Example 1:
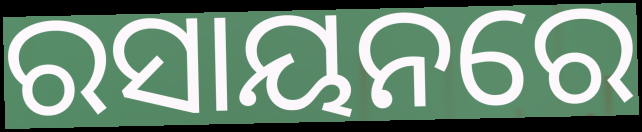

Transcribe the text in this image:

ରସାୟନରେ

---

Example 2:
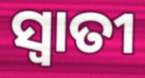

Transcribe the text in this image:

ସ୍ୱାତୀ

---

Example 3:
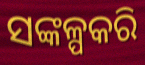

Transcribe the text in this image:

ସଙ୍କଳ୍ପକରି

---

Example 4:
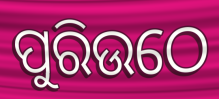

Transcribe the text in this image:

ପୁରିଉଠେ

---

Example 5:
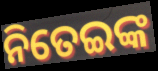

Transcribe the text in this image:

ନିତେଇଙ୍କ